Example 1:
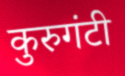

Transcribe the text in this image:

कुरुगंटी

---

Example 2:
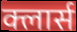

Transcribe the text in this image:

क्लार्स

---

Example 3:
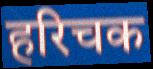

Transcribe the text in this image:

हरिचक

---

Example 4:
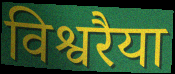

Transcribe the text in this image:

विश्वरैया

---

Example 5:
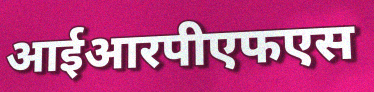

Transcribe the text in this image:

आईआरपीएफएस